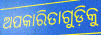
ଅପକାରିତାଗୁଡ଼ିକୁ